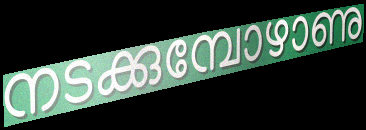
നടക്കുമ്പോഴാണു